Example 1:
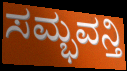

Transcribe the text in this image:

ಸಮ್ಭವನ್ತಿ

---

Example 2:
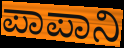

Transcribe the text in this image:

ಪಾಪಾನಿ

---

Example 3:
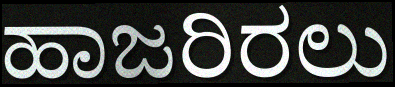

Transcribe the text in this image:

ಹಾಜರಿರಲು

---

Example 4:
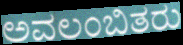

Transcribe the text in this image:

ಅವಲಂಬಿತರು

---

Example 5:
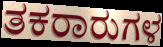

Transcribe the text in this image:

ತಕರಾರುಗಳ